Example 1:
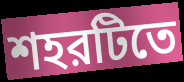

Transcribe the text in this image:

শহরটিতে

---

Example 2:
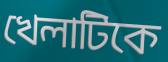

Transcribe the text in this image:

খেলাটিকে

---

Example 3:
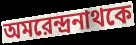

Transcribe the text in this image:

অমরেন্দ্রনাথকে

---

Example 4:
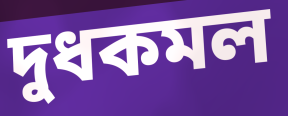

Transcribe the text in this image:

দুধকমল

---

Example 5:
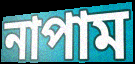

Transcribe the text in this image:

নাপাম